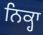
ਨਿਕ੍ਹਾ